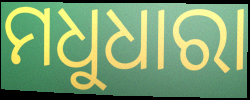
ମଧୁଧାରା